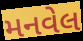
મનવેલ